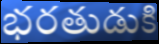
భరతుడుకి